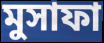
মুসাফা